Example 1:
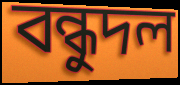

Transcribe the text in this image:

বন্ধুদল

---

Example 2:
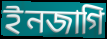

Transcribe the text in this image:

ইনজাগি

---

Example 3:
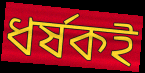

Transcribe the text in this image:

ধর্ষকই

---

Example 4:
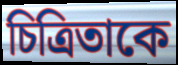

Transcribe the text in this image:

চিত্রিতাকে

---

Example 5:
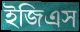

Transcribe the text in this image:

ইজিএস